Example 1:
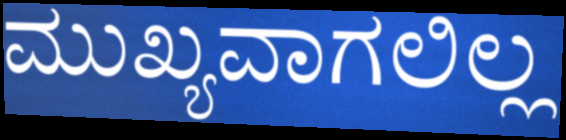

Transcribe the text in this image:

ಮುಖ್ಯವಾಗಲಿಲ್ಲ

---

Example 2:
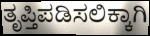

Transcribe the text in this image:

ತೃಪ್ತಿಪಡಿಸಲಿಕ್ಕಾಗಿ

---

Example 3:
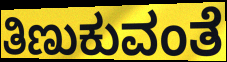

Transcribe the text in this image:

ತಿಣುಕುವಂತೆ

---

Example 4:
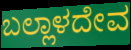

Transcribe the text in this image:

ಬಲ್ಲಾಳದೇವ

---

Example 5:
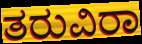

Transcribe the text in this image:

ತರುವಿರಾ